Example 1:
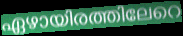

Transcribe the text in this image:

ഏഴായിരത്തിലേറെ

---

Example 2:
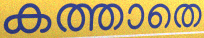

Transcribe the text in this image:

കത്താതെ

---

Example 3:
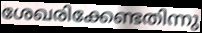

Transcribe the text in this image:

ശേഖരിക്കേണ്ടതിന്നു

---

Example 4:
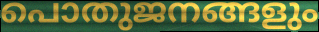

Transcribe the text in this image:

പൊതുജനങ്ങളും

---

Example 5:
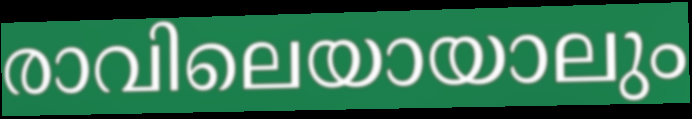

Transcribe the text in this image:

രാവിലെയായാലും